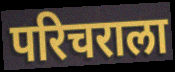
परिचराला